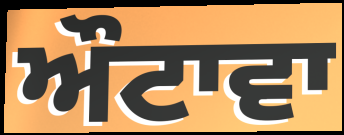
ਔਟਾਵਾ